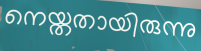
നെയ്തതായിരുന്നു